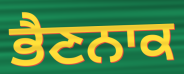
ਭੈਣਨਾਕ